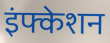
इंफ्केशन